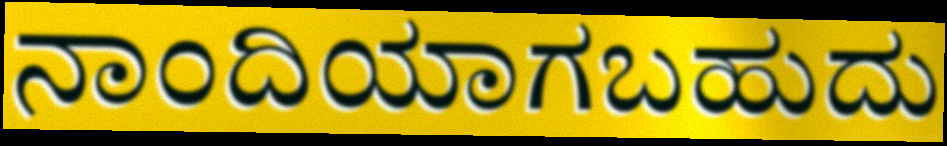
ನಾಂದಿಯಾಗಬಹುದು